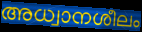
അധ്വാനശീലം